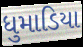
ધુમાડિયા